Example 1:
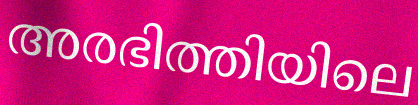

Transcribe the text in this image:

അരഭിത്തിയിലെ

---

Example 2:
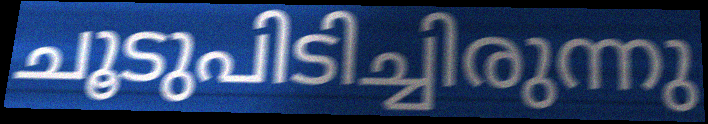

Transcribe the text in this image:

ചൂടുപിടിച്ചിരുന്നു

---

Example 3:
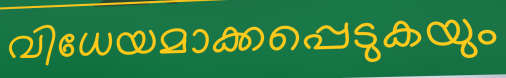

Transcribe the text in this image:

വിധേയമാക്കപ്പെടുകയും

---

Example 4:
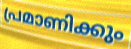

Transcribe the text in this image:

പ്രമാണിക്കും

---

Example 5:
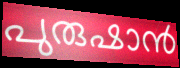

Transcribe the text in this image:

പുരുഷാൻ